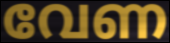
വേണ